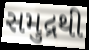
સમુદ્રથી